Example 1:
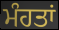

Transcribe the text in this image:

ਮੰਹਤਾਂ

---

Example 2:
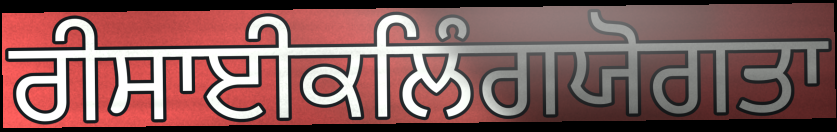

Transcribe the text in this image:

ਰੀਸਾਈਕਲਿੰਗਯੋਗਤਾ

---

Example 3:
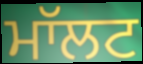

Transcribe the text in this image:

ਮਾੱਲਟ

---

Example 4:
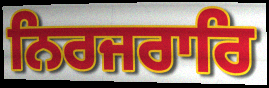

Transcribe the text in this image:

ਨਿਰਜਰਾਰਿ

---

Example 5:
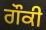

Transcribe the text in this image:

ਗੌਕੀ